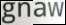
gnaw